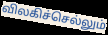
விலகிச்செல்லும்